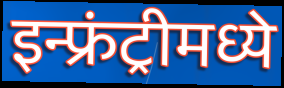
इन्फ्रंट्रीमध्ये